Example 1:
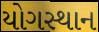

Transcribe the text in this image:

યોગસ્થાન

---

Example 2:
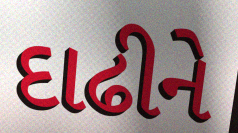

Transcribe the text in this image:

દાઢીને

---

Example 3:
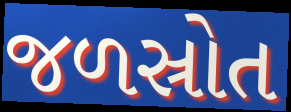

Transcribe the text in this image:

જળસ્રોત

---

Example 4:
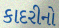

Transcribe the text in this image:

કાદરીનો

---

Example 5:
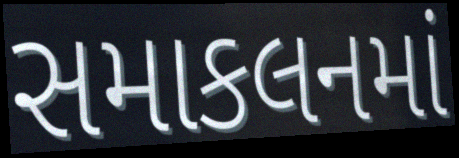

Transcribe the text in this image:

સમાકલનમાં